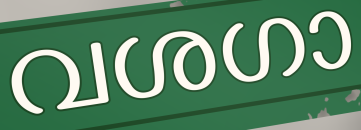
വശഗാ